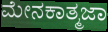
ಮೇನಕಾತ್ಮಜಾ